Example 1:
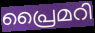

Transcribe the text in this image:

പ്രൈമറി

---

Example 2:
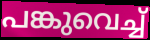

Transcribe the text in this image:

പങ്കുവെച്ച്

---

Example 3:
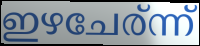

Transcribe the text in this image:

ഇഴചേര്ന്ന്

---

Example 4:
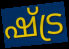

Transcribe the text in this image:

ഷ്ട്ര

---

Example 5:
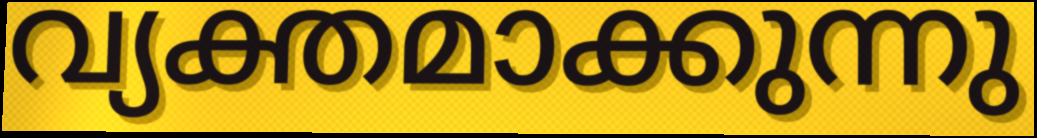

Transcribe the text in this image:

വ്യക്തമാക്കുന്നു